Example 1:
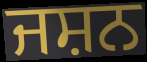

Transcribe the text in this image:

ਜਸ਼ਨ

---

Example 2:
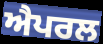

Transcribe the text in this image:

ਐਪਰਲ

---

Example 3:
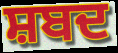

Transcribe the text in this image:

ਸ਼ਬਦ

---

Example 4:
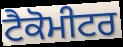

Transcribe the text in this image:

ਟੈਕੋਮੀਟਰ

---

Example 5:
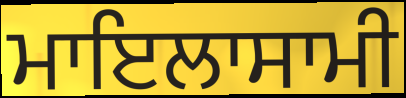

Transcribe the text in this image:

ਮਾਇਲਾਸਾਮੀ